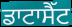
ਡਾਟਾਸੈੱਟ